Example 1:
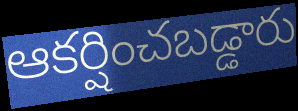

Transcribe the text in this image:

ఆకర్షించబడ్డారు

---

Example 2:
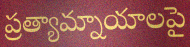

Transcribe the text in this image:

ప్రత్యామ్నాయాలపై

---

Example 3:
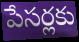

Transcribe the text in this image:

పేసర్లకు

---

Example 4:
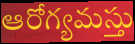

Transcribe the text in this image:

ఆరోగ్యమస్తు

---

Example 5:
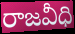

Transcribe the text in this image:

రాజవీధి